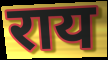
राय